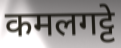
कमलगट्टे